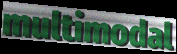
multimodal